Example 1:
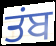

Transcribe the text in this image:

ਤਂਬ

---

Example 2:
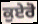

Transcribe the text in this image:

ਕੁਏਰੋ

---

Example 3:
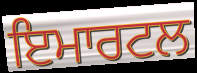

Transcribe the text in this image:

ਇਮਾਰਟਲ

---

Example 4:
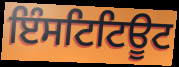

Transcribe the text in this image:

ਇੰਸਟਿਟਿਊਟ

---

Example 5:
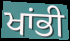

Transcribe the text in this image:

ਖਾਂਭੀ